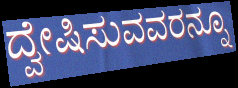
ದ್ವೇಷಿಸುವವರನ್ನೂ